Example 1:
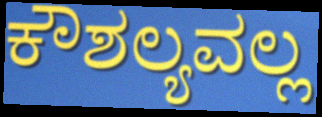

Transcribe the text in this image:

ಕೌಶಲ್ಯವಲ್ಲ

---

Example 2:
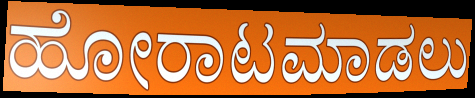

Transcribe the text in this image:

ಹೋರಾಟಮಾಡಲು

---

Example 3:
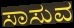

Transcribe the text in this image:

ಸಾಸುವ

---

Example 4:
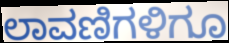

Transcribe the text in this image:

ಲಾವಣಿಗಳಿಗೂ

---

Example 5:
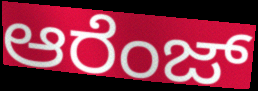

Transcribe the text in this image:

ಆರೆಂಜ್